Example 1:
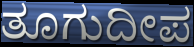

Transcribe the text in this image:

ತೂಗುದೀಪ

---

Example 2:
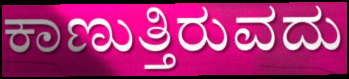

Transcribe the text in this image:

ಕಾಣುತ್ತಿರುವದು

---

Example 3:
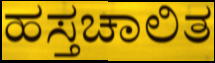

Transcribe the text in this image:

ಹಸ್ತಚಾಲಿತ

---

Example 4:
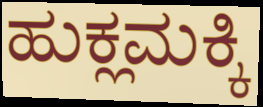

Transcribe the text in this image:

ಹುಕ್ಲಮಕ್ಕಿ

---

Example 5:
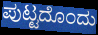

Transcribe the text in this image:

ಪುಟ್ಟದೊಂದು